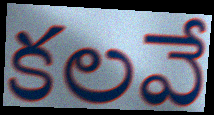
కలవే